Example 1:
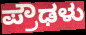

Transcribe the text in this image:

ಪ್ರೌಢಳು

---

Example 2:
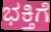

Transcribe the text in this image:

ಭಕ್ತಿಗೆ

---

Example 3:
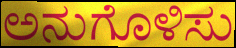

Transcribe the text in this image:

ಅನುಗೊಳಿಸು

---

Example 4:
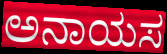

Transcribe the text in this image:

ಅನಾಯಸ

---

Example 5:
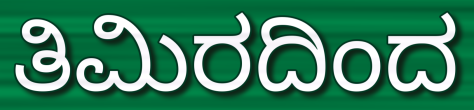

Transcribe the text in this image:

ತಿಮಿರದಿಂದ